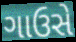
ગાઉસે